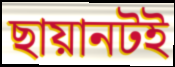
ছায়ানটই